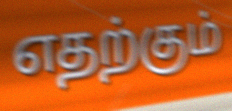
எதற்கும்